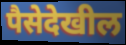
पैसेदेखील